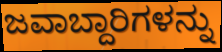
ಜವಾಬ್ದಾರಿಗಳನ್ನು